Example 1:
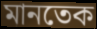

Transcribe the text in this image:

মানতেক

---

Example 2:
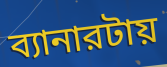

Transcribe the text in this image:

ব্যানারটায়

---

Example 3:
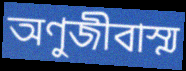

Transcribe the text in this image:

অণুজীবাস্ম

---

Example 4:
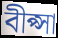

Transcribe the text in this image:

বীপ্সা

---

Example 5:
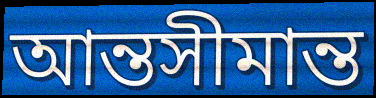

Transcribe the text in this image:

আন্তসীমান্ত